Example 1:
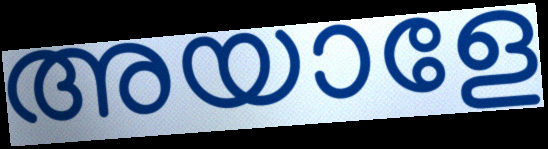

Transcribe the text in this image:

അയാളേ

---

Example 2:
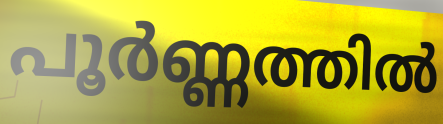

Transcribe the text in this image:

പൂർണ്ണത്തിൽ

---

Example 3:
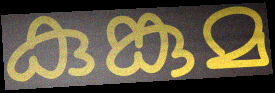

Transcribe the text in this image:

കുങ്കുമ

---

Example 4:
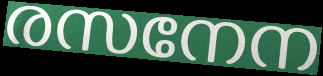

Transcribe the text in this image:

രസനേന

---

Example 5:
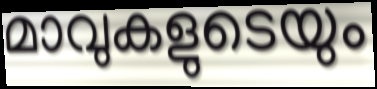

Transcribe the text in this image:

മാവുകളുടെയും